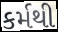
કર્મથી